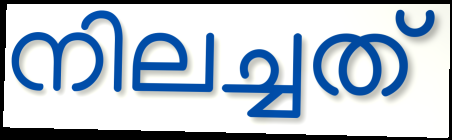
നിലച്ചത്